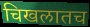
चिखलातच